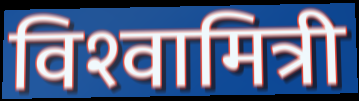
विश्वामित्री